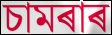
চামৰাৰ